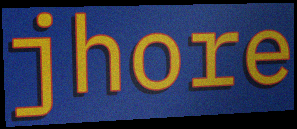
jhore